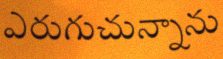
ఎరుగుచున్నాను